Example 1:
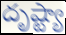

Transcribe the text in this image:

దృష్ట్యా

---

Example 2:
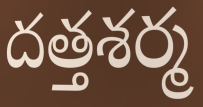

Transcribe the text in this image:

దత్తశర్మ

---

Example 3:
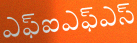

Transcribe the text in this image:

ఎఫ్ఐఎఫ్ఎస్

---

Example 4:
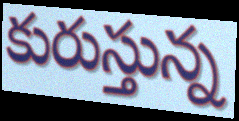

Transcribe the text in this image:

కురుస్తున్న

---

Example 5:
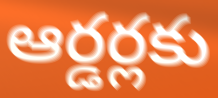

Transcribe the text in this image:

ఆర్డర్లకు